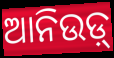
ଆନିଉଡ଼୍